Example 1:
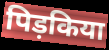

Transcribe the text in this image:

पिड़किया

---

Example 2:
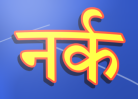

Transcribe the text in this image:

नर्क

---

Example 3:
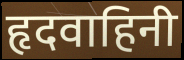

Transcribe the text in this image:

हृदवाहिनी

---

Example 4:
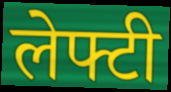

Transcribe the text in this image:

लेफ्टी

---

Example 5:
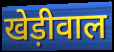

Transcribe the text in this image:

खेड़ीवाल